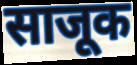
साजूक